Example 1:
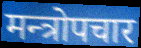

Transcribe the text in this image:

मन्त्रोपचार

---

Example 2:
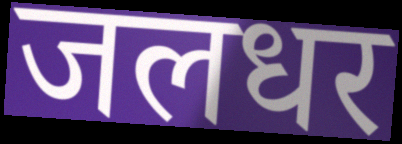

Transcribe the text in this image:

जलधर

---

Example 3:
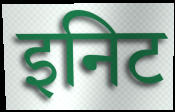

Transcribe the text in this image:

इनिट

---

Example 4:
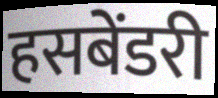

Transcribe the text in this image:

हसबेंडरी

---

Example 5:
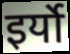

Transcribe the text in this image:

इर्यो